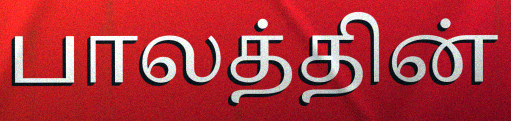
பாலத்தின்